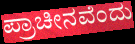
ಪ್ರಾಚೀನವೆಂದು